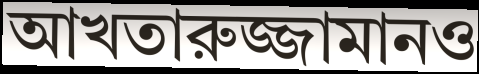
আখতারুজ্জামানও